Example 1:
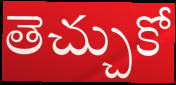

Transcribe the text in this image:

తెచ్చుకో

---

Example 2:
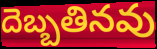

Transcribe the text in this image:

దెబ్బతినవు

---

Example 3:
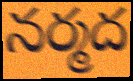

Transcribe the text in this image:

నర్మద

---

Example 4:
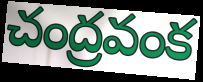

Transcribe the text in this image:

చంద్రవంక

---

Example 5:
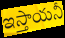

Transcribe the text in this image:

ఇస్తాయనీ